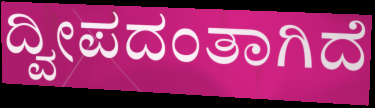
ದ್ವೀಪದಂತಾಗಿದೆ